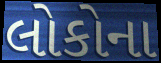
લોકોના